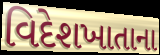
વિદેશખાતાના